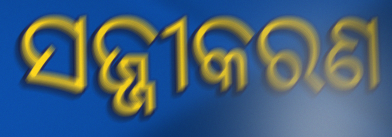
ସଜ୍ଜୀକରଣ